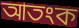
আতংক